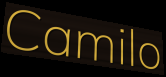
Camilo